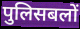
पुलिसबलों